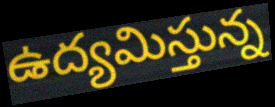
ఉద్యమిస్తున్న